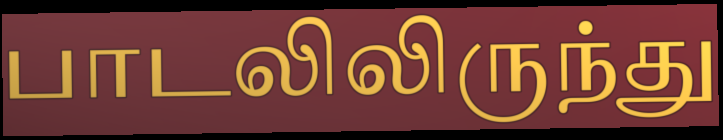
பாடலிலிருந்து